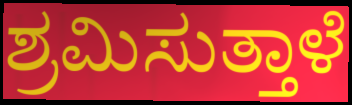
ಶ್ರಮಿಸುತ್ತಾಳೆ